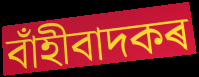
বাঁহীবাদকৰ